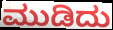
ಮುಡಿದು